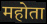
महोता